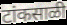
टांकसाळी